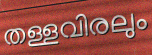
തള്ളവിരലും